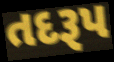
તદરૂપ